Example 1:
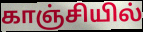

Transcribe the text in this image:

காஞ்சியில்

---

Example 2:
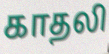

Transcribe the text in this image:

காதலி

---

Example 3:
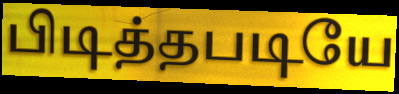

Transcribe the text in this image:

பிடித்தபடியே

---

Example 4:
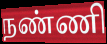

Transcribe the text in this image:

நண்ணி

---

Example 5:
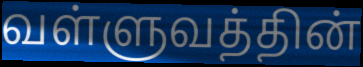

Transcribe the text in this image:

வள்ளுவத்தின்